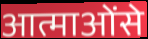
आत्माओंसे